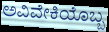
ಅವಿವೇಕಿಯೊಬ್ಬ